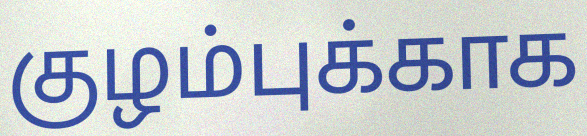
குழம்புக்காக